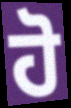
ਹੋ